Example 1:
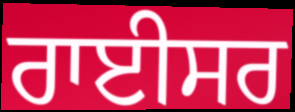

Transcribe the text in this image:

ਰਾਈਸਰ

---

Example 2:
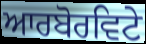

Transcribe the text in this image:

ਆਰਬੋਰਵਿਟੇ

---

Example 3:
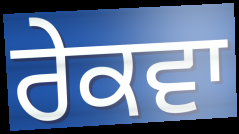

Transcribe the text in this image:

ਰੇਕਵਾ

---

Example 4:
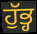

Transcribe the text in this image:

ਹੁੱਭ੍ਹ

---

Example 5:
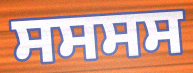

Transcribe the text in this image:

ਸਸਸਸ